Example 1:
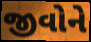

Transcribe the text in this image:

જીવોને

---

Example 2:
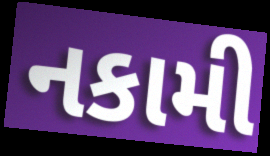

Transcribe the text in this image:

નકામી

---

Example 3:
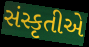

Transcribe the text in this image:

સંસ્કૃતીએ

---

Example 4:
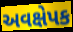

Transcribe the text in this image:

અવક્ષેપક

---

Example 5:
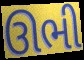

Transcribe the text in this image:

ઊભી